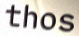
thos